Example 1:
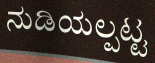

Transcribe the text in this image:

ನುಡಿಯಲ್ಪಟ್ಟ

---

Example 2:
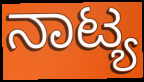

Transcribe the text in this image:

ನಾಟ್ಯ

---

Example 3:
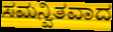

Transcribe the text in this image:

ಸಮನ್ವಿತವಾದ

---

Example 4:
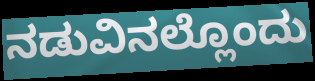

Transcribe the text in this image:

ನಡುವಿನಲ್ಲೊಂದು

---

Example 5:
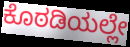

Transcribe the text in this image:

ಕೊಠಡಿಯಲ್ಲೇ